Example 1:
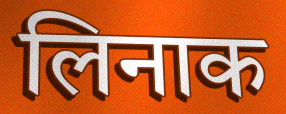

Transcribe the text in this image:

लिनाक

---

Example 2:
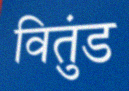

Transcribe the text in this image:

वितुंड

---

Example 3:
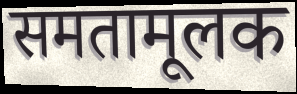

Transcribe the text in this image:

समतामूलक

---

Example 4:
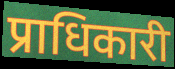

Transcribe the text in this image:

प्राधिकारी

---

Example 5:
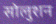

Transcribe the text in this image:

सोलुशन